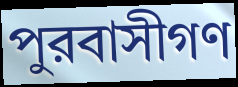
পুরবাসীগণ